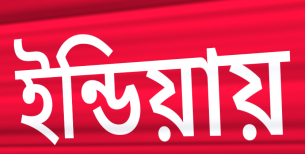
ইন্ডিয়ায়